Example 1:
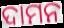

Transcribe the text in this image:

ଦାମନ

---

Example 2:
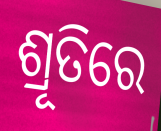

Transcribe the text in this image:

ଶ୍ରୂତିରେ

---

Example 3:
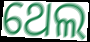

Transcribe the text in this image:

ଥେଲ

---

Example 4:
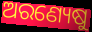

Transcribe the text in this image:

ଅରଣ୍ୟେଷୁ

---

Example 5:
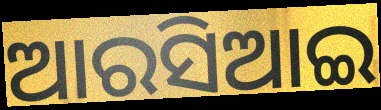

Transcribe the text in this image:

ଆରସିଆଇ